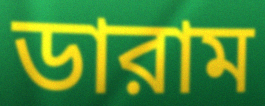
ডারাম